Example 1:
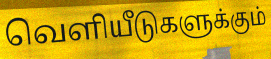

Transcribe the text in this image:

வெளியீடுகளுக்கும்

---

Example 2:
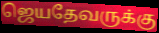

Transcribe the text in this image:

ஜெயதேவருக்கு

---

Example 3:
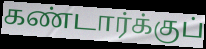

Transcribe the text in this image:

கண்டார்க்குப்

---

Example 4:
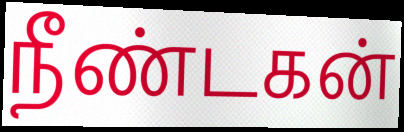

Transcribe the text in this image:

நீண்டகன்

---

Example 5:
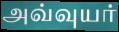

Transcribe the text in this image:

அவ்வுயர்